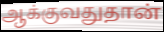
ஆக்குவதுதான்